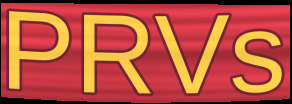
PRVs